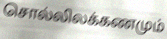
சொல்லிலக்கணமும்